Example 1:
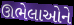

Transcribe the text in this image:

ઊભેલાઓને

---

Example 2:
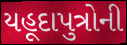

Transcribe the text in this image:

યહૂદાપુત્રોની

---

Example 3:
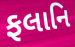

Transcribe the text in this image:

ફલાનિ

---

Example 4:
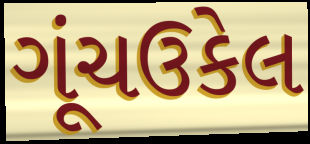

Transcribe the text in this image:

ગૂંચઉકેલ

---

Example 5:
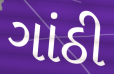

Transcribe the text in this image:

ગાંઠી